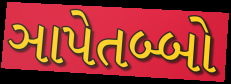
ઞાપેતબ્બો